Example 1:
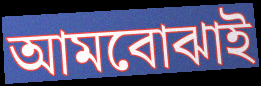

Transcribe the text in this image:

আমবোঝাই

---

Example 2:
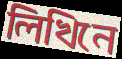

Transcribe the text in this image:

লিখিনে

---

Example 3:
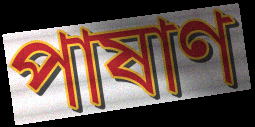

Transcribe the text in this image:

পাষাণ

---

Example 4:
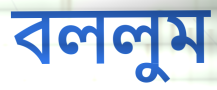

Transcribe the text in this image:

বললুম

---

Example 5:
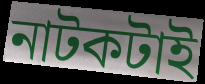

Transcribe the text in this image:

নাটকটাই